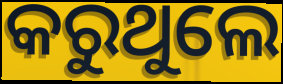
କରୁଥୁଲେ